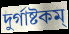
দুর্গাষ্টকম্